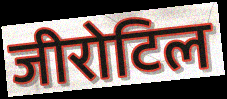
जीरोटिल